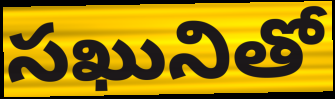
సఖునితో